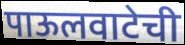
पाऊलवाटेची